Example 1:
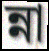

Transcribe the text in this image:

ন্না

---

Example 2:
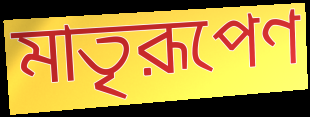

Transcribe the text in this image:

মাতৃরূপেণ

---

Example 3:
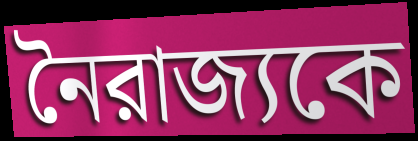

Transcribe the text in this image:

নৈরাজ্যকে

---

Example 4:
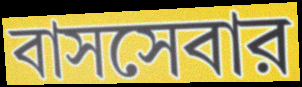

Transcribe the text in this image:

বাসসেবার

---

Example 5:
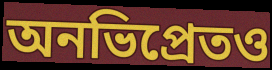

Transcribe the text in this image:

অনভিপ্রেতও